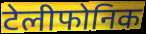
टेलीफोनिक